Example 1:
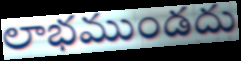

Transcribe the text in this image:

లాభముండదు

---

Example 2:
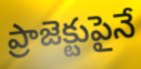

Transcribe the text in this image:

ప్రాజెక్టుపైనే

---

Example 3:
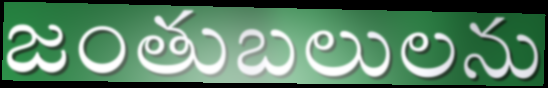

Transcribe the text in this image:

జంతుబలులను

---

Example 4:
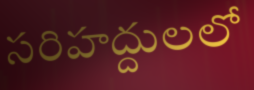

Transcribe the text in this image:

సరిహద్దులలో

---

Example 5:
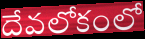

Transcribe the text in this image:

దేవలోకంలో